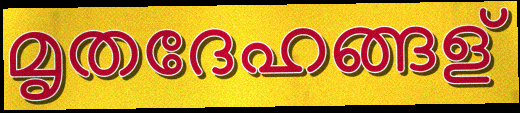
മൃതദേഹങ്ങള്